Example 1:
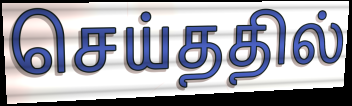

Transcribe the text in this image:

செய்ததில்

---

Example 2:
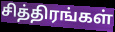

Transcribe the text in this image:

சித்திரங்கள்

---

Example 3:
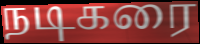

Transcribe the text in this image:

நடிகரை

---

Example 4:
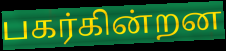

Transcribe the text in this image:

பகர்கின்றன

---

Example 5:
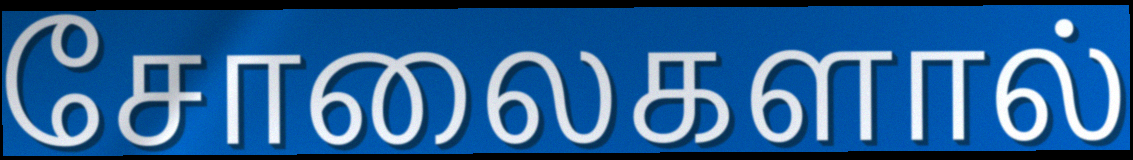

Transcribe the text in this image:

சோலைகளால்